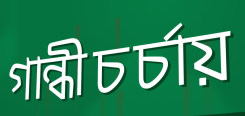
গান্ধীচর্চায়